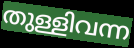
തുള്ളിവന്ന